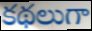
కథలుగా